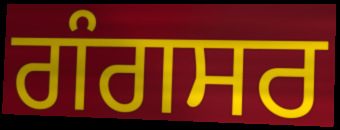
ਗੰਗਸਰ